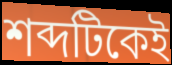
শব্দটিকেই